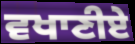
ਵਖਾਣੀਏ